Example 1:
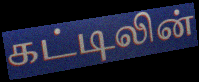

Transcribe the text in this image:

கட்டிலின்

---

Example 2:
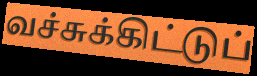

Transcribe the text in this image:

வச்சுக்கிட்டுப்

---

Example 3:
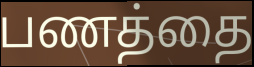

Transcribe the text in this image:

பணத்தை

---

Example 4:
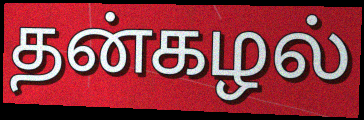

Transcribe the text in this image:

தன்கழல்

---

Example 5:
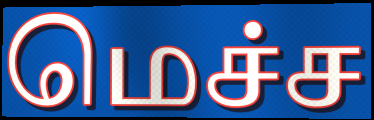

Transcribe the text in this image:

மெச்ச